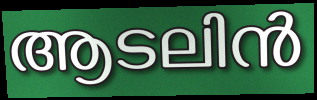
ആടലിൻ